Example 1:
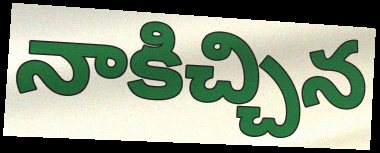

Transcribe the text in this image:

నాకిచ్చిన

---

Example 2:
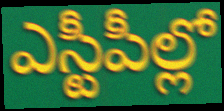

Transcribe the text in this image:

ఎస్టీపీల్లో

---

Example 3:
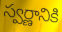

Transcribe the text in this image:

స్వర్ణానికి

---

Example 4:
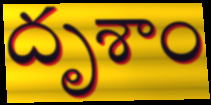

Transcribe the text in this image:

దృశాం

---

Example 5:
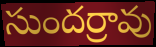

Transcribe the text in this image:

సుందర్రావు